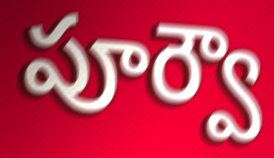
పూర్వౌ